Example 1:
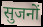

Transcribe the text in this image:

सुजनों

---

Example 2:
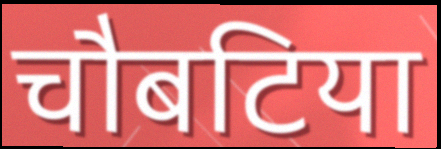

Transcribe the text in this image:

चौबटिया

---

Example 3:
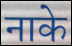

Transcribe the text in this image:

नाके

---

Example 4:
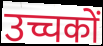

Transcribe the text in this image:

उच्चकों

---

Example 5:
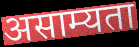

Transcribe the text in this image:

असाम्यता